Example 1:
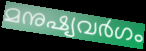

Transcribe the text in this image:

മനുഷ്യവർഗം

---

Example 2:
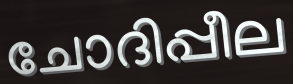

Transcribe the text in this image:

ചോദിപ്പീല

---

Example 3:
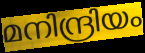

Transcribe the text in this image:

മനിന്ദ്രിയം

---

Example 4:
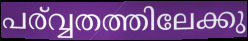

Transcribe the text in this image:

പര്വ്വതത്തിലേക്കു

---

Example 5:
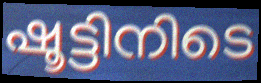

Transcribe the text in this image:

ഷൂട്ടിനിടെ